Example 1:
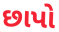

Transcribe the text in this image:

છાપો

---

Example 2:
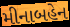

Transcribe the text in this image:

મીનાબહેન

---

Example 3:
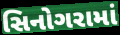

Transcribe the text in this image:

સિનોગરામાં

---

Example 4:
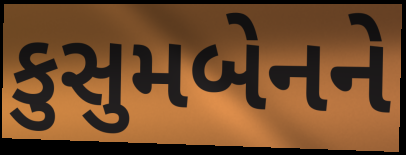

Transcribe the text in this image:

કુસુમબેનને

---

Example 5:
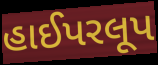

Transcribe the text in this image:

હાઈપરલૂપ